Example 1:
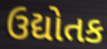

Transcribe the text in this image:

ઉદ્યોતક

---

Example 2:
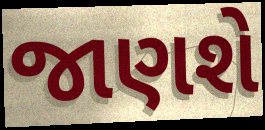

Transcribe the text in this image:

જાણશે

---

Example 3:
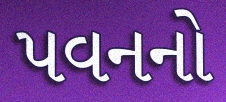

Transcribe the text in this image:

પવનનો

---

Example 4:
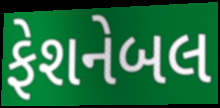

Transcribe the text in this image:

ફેશનેબલ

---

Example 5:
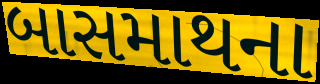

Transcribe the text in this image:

બાસમાથના